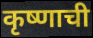
कृष्णाची